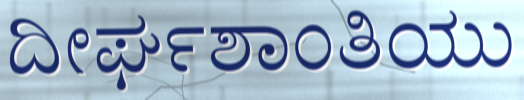
ದೀರ್ಘಶಾಂತಿಯು